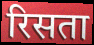
रिसता